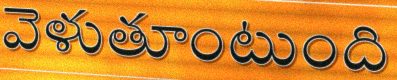
వెళుతూంటుంది